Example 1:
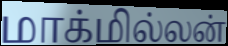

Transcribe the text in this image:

மாக்மில்லன்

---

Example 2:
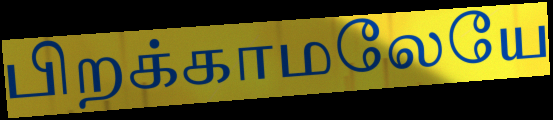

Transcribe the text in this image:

பிறக்காமலேயே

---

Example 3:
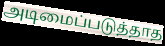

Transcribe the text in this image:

அடிமைப்படுத்தாத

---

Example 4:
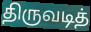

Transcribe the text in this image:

திருவடித்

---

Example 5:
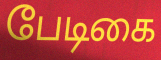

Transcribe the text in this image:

பேடிகை